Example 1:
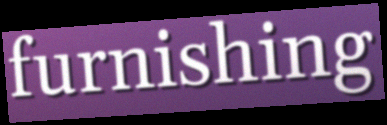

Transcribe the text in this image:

furnishing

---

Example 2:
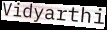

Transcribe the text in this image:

Vidyarthi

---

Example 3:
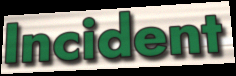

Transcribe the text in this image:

Incident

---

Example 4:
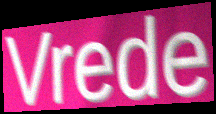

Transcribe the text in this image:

Vrede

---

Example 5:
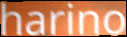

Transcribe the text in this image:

harino